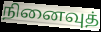
நினைவுத்